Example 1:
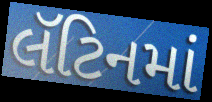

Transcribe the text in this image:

લૅટિનમાં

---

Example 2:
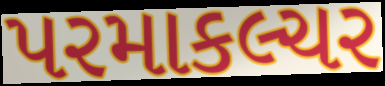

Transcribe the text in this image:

પરમાકલ્ચર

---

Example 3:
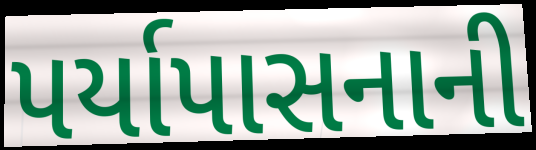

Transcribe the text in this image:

પર્યાપાસનાની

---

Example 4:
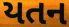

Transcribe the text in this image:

યતન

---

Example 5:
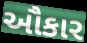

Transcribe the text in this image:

ઔકાર